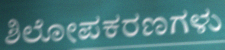
ಶಿಲೋಪಕರಣಗಳು